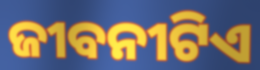
ଜୀବନୀଟିଏ